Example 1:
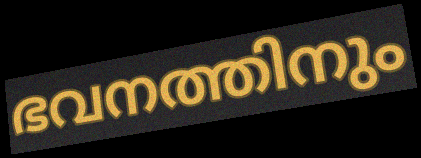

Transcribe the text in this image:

ഭവനത്തിനും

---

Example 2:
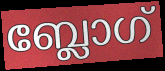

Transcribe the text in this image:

ബ്ലോഗ്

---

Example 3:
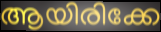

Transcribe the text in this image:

ആയിരിക്കേ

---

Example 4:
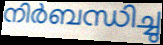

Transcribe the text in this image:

നിർബന്ധിച്ചു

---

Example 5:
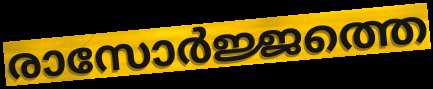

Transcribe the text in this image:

രാസോർജ്ജത്തെ